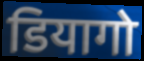
डियागो